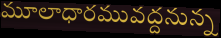
మూలాధారమువద్దనున్న